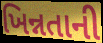
ખિન્નતાની